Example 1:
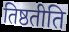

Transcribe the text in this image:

तिष्ठतीति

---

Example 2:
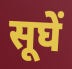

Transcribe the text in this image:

सूघें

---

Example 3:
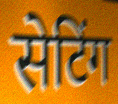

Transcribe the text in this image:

सेटिंग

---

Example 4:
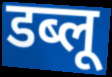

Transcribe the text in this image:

डब्लू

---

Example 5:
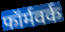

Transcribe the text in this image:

फॉर्मवर्क